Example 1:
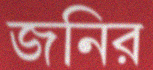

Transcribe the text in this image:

জনির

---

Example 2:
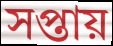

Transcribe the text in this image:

সপ্তায়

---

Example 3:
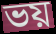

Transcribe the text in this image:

ভয়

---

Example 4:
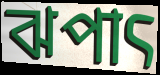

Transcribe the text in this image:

ঝপাৎ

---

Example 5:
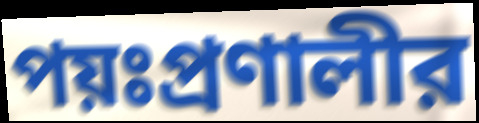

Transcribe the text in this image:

পয়ঃপ্রণালীর